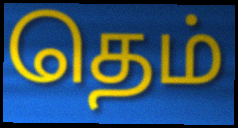
தெம்